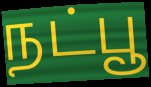
நட்பூ